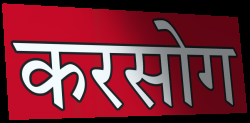
करसोग